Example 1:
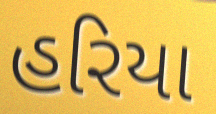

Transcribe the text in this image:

હરિયા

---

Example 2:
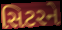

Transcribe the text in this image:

સિટરને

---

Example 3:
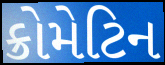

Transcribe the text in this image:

ક્રોમેટિન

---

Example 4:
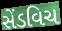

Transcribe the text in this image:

સેંડવિચ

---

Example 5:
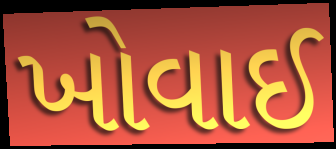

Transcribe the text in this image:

ખોવાઈ